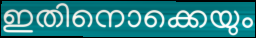
ഇതിനൊക്കെയും